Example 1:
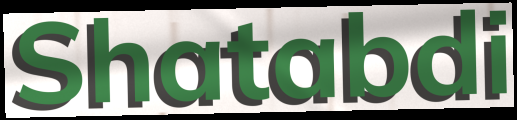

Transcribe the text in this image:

Shatabdi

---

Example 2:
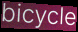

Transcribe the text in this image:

bicycle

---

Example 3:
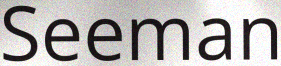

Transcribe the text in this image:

Seeman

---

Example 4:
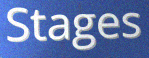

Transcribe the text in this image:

Stages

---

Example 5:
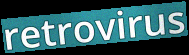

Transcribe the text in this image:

retrovirus